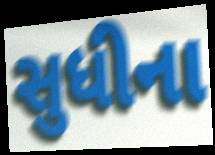
સુધીના